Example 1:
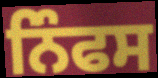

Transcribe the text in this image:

ਨਿੰਫਸ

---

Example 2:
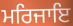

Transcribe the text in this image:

ਮਰਿਜਾਇ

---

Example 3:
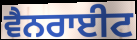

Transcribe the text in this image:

ਵੈਨਰਾਈਟ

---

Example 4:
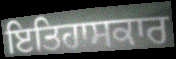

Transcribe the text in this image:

ਇਤਿਹਾਸਕਾਰ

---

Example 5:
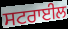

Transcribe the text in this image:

ਸਟਰਾਈਲ